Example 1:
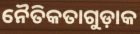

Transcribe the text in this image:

ନୈତିକତାଗୁଡ଼ାକ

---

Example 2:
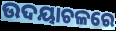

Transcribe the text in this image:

ଉଦୟାଚଳରେ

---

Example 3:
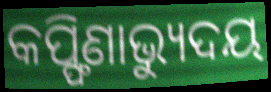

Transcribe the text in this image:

କପ୍ଫିଣାଭ୍ୟୁଦୟ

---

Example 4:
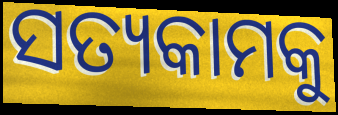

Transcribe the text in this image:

ସତ୍ୟକାମକୁ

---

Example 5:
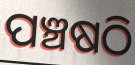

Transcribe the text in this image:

ପଞ୍ଚଷଠି